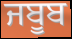
ਜਬੂਬ